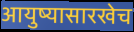
आयुष्यासारखेच